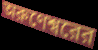
অরুণেশ্বরের